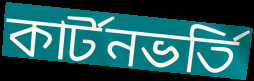
কার্টনভর্তি